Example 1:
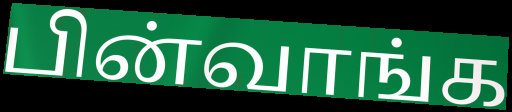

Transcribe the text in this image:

பின்வாங்க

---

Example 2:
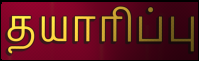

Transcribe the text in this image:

தயாரிப்பு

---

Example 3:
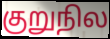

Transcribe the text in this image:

குறுநில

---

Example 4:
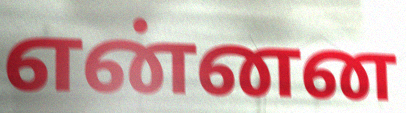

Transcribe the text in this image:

என்னன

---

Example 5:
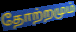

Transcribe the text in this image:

தோற்றமும்